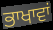
ਭਾਖਾਵਾਂ